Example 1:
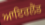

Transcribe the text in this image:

ਆਇਰਲੈਂਡ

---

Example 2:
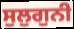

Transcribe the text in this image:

ਸੁਲੁਗੁਨੀ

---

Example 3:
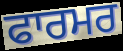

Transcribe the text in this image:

ਫਾਰਮਰ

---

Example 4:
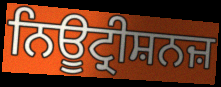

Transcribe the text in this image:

ਨਿਊਟ੍ਰੀਸ਼ਨਜ਼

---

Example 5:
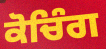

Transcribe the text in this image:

ਕੋਚਿੰਗ